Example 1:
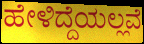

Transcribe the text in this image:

ಹೇಳಿದ್ದೆಯಲ್ಲವೆ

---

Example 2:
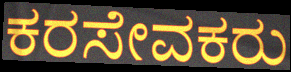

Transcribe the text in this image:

ಕರಸೇವಕರು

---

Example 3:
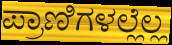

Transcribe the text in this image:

ಪ್ರಾಣಿಗಳಲ್ಲೆಲ್ಲ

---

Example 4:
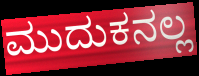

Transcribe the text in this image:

ಮುದುಕನಲ್ಲ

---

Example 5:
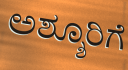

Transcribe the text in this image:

ಅಶ್ಶೂರಿಗೆ